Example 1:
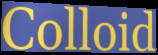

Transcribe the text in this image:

Colloid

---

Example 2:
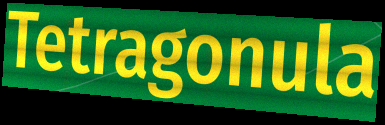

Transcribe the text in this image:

Tetragonula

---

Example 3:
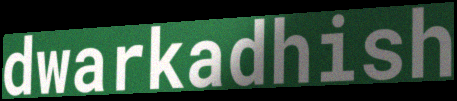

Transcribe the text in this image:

dwarkadhish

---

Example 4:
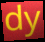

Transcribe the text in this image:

dy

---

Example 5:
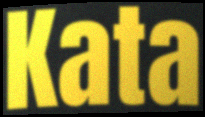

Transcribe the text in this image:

Kata